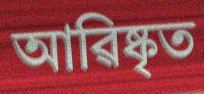
আৱিষ্কৃত